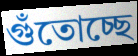
গুঁতোচ্ছে